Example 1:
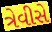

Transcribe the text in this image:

ત્રેવીસે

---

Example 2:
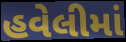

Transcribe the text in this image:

હવેલીમાં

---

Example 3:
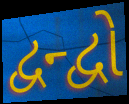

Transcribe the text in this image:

દ્વન્દ્વો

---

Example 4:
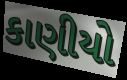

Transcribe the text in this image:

કાણીયો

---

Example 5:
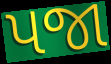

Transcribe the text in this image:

પજા